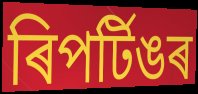
ৰিপৰ্টিঙৰ